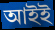
আইই